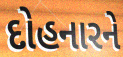
દોહનારને